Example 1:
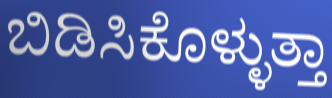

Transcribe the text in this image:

ಬಿಡಿಸಿಕೊಳ್ಳುತ್ತಾ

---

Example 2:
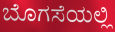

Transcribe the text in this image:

ಬೊಗಸೆಯಲ್ಲಿ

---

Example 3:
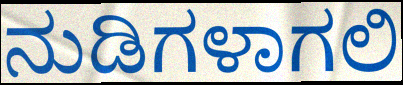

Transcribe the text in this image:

ನುಡಿಗಳಾಗಲಿ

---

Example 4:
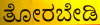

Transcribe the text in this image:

ತೋರಬೇಡಿ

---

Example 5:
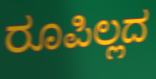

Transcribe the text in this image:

ರೂಪಿಲ್ಲದ